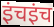
इंचइंच